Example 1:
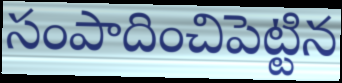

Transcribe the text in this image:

సంపాదించిపెట్టిన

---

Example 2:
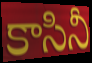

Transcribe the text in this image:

కాసినీ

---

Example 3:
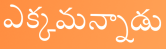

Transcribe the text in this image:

ఎక్కమన్నాడు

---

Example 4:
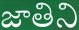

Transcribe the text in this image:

జాతిని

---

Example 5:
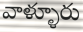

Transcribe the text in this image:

వాళ్ళూరు